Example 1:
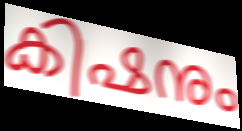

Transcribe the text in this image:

കിഷനും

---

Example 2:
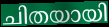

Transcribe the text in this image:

ചിതയായി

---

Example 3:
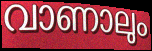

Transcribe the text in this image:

വാണാലും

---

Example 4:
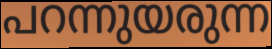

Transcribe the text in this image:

പറന്നുയരുന്ന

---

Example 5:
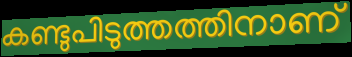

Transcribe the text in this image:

കണ്ടുപിടുത്തത്തിനാണ്